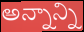
అన్నాన్ని